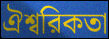
ঐশ্বরিকতা